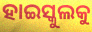
ହାଇସ୍କୁଲକୁ